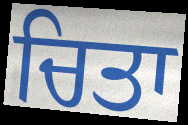
ਚਿਤਾ